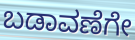
ಬಡಾವಣೆಗೇ